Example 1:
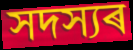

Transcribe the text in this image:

সদস্যৰ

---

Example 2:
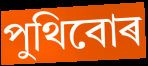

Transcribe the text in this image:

পুথিবোৰ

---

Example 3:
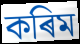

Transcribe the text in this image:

কৰিম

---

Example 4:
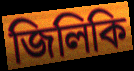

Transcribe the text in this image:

জিলিকি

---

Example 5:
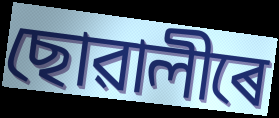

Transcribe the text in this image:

ছোৱালীৰে